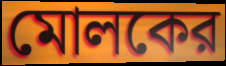
মোলকের